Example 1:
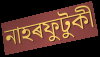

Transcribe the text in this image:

নাহৰফুটুকী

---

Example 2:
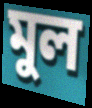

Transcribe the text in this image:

মুল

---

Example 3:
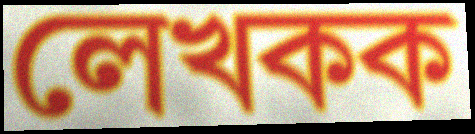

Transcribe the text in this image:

লেখকক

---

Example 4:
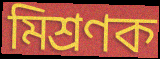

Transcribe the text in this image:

মিশ্ৰণক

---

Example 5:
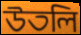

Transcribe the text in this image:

উতলি